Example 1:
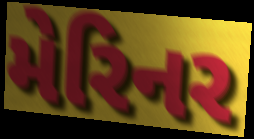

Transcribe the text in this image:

મેરિનર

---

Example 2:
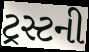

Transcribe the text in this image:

ટ્રસ્ટની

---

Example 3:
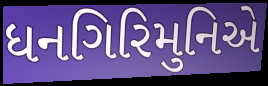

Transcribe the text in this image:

ધનગિરિમુનિએ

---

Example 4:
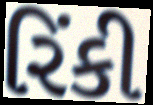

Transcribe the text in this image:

રિંકી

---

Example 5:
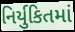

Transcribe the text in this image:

નિર્યુકિતમાં